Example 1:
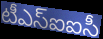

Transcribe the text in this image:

టీఎస్ఐఐసీ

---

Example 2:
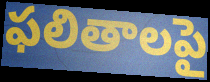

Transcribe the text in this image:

ఫలితాలపై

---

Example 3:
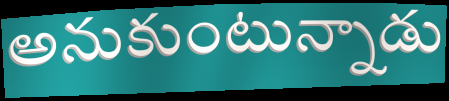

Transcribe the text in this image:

అనుకుంటున్నాడు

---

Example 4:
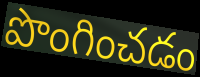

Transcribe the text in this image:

పొంగించడం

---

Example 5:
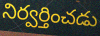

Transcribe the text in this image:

నిర్వర్తించడు